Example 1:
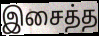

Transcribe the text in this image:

இசைத்த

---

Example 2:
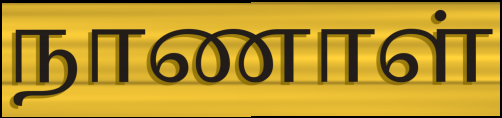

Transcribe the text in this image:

நாணாள்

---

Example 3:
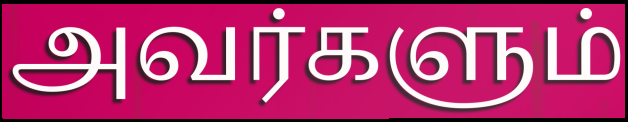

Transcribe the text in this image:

அவர்களும்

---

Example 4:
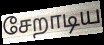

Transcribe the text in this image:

சேறாடிய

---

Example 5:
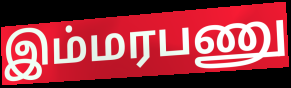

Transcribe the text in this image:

இம்மரபணு